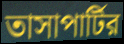
তাসাপার্টির